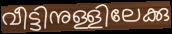
വീട്ടിനുള്ളിലേക്കു